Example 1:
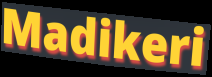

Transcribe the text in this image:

Madikeri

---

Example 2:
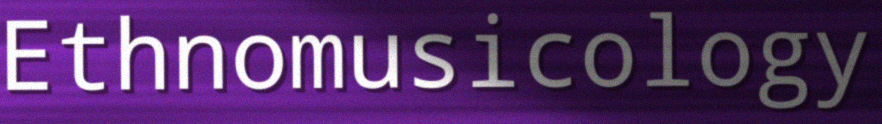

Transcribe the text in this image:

Ethnomusicology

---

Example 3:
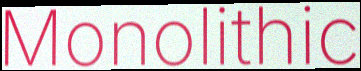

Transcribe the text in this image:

Monolithic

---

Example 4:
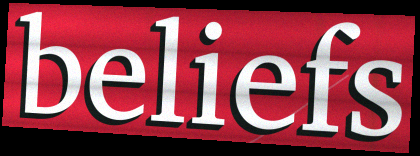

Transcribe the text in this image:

beliefs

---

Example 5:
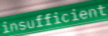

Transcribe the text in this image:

insufficient